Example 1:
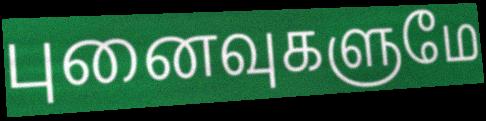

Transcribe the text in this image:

புனைவுகளுமே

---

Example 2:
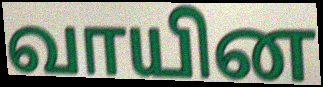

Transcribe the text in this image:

வாயின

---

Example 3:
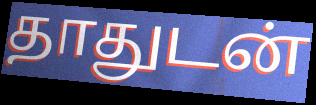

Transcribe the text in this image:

தாதுடன்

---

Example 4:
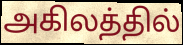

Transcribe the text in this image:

அகிலத்தில்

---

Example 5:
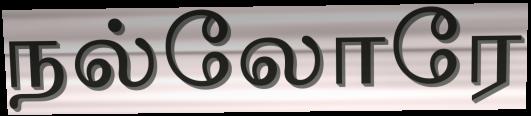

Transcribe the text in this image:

நல்லோரே